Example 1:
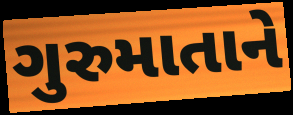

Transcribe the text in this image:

ગુરુમાતાને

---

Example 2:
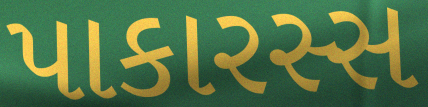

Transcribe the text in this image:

પાકારસ્સ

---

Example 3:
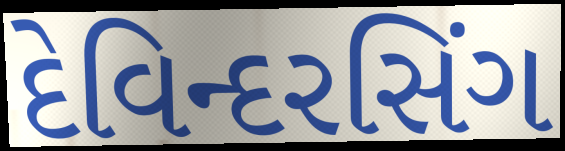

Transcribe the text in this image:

દેવિન્દરસિંગ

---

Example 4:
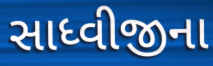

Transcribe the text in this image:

સાધ્વીજીના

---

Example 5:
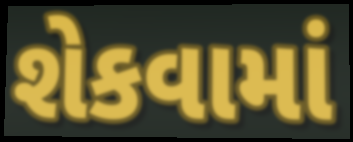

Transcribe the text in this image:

શેકવામાં